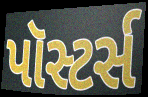
પૉસ્ટર્સ